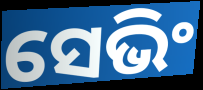
ସେଭିଂ